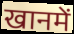
खानमें